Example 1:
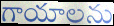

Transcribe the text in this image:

గాయాలను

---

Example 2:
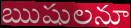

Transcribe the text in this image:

ఋషులనూ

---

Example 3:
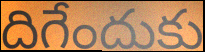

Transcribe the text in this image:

దిగేందుకు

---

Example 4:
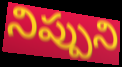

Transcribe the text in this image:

నిప్పుని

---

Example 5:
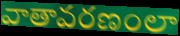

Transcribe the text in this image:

వాతావరణంలా